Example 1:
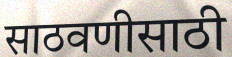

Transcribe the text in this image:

साठवणीसाठी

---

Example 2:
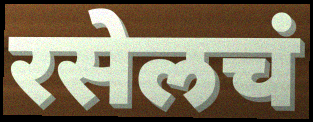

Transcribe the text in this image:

रसेलचं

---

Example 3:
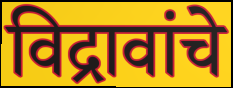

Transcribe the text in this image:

विद्रावांचे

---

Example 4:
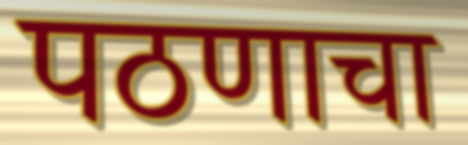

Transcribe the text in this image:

पठणाचा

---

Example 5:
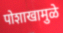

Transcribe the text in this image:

पोशाखामुळे